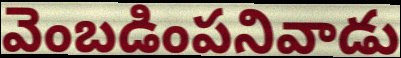
వెంబడింపనివాడు